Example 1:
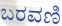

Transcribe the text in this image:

ಬರವಣಿ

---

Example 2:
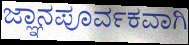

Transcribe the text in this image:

ಜ್ಞಾನಪೂರ್ವಕವಾಗಿ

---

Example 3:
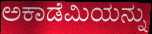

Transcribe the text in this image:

ಅಕಾಡೆಮಿಯನ್ನು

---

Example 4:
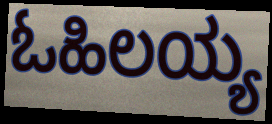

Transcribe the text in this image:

ಓಹಿಲಯ್ಯ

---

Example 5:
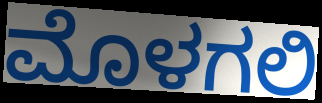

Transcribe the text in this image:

ಮೊಳಗಲಿ